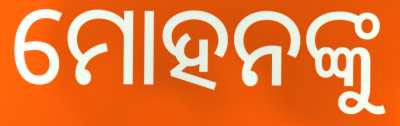
ମୋହନଙ୍କୁ